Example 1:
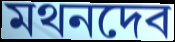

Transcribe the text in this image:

মথনদেব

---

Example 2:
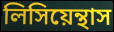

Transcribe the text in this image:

লিসিয়েন্থাস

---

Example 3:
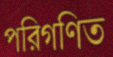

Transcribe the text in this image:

পরিগণিত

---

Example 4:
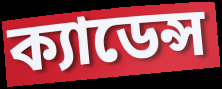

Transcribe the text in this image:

ক্যাডেন্স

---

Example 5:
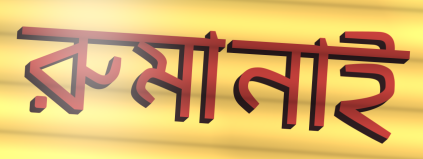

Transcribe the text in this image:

রুমানাই